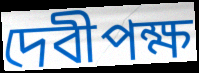
দেবীপক্ষ